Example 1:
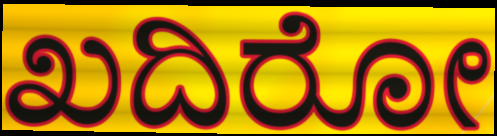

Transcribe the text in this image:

ಖದಿರೋ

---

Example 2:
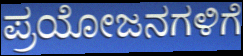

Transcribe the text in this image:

ಪ್ರಯೋಜನಗಳಿಗೆ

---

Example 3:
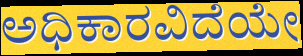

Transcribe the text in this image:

ಅಧಿಕಾರವಿದೆಯೇ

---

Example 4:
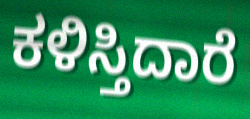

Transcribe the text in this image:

ಕಳಿಸ್ತಿದಾರೆ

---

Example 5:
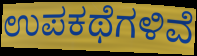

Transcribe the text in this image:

ಉಪಕಥೆಗಳಿವೆ